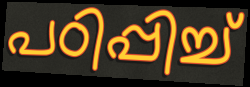
പഠിപ്പിച്ച്